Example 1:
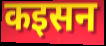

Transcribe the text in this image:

कइसन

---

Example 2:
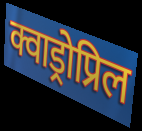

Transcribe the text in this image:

क्वाड्रोप्रिल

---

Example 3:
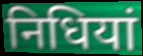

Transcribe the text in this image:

निधियां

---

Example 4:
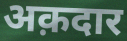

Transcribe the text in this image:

अक़दार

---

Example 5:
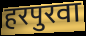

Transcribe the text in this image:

हरपुरवा